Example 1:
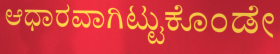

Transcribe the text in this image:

ಆಧಾರವಾಗಿಟ್ಟುಕೊಂಡೇ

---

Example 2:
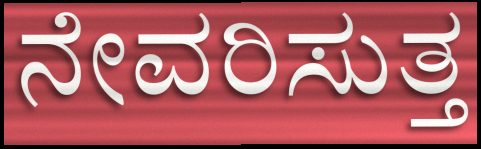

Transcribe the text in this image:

ನೇವರಿಸುತ್ತ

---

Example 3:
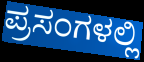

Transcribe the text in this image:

ಪ್ರಸಂಗಳಲ್ಲಿ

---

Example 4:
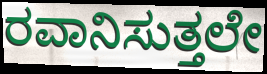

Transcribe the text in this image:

ರವಾನಿಸುತ್ತಲೇ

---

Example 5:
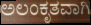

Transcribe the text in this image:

ಅಲಂಕೃತವಾಗಿ